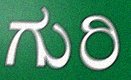
ಗುರಿ